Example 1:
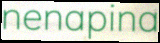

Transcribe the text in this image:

nenapina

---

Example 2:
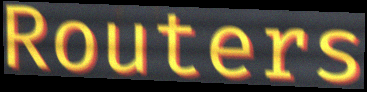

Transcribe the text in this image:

Routers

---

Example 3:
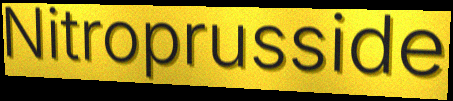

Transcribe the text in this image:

Nitroprusside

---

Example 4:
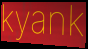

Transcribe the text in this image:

kyank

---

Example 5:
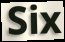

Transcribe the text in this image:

Six